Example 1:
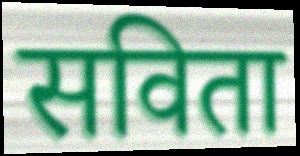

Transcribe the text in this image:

सविता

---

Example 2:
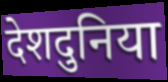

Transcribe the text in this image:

देशदुनिया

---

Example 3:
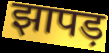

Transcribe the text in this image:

झापड़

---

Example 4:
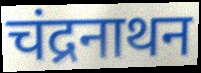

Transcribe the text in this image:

चंद्रनाथन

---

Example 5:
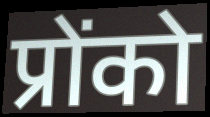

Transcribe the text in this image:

प्रोंको